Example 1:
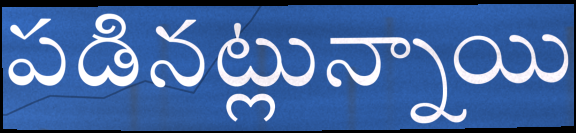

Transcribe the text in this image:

పడినట్లున్నాయి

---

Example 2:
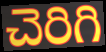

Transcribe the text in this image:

చెరిగి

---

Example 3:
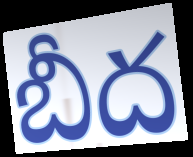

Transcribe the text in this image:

బీద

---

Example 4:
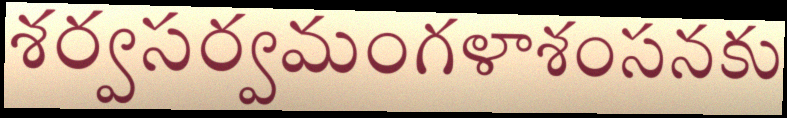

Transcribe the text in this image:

శర్వసర్వమంగళాశంసనకు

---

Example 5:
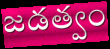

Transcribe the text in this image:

జడత్వం